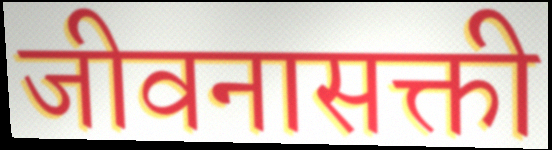
जीवनासक्ती